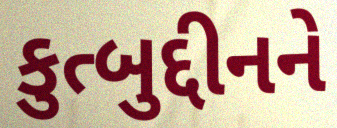
કુત્બુદ્દીનને